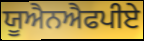
ਯੂਐਨਐਫਪੀਏ